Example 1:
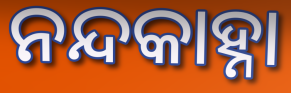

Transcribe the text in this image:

ନନ୍ଦକାହ୍ନା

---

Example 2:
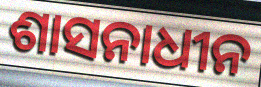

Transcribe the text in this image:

ଶାସନାଧୀନ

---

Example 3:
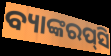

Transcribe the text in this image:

ବ୍ୟାଙ୍କରପ୍‌ସି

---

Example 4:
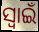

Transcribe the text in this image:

ସ୍ଵାଇଁ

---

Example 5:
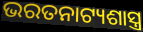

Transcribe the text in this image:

ଭରତନାଟ୍ୟଶାସ୍ତ୍ର